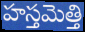
హస్తమెత్తి